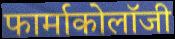
फार्माकोलॉजी